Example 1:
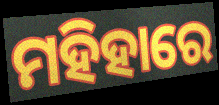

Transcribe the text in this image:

ମହିହାରେ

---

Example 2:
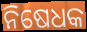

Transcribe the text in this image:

ନିଷେଧକ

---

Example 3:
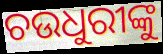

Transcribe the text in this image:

ଚଉଧୁରୀଙ୍କୁ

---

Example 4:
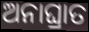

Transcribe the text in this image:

ଅନାଘ୍ରାତ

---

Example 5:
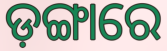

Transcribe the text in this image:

ଡ଼ଙ୍ଗାରେ